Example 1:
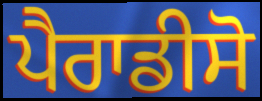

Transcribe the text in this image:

ਪੈਰਾਡੀਸੋ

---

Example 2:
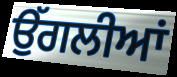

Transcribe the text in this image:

ਉੱਗਲੀਆਂ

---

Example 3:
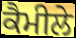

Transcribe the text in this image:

ਕੈਮੀਲੇ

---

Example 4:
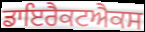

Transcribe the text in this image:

ਡਾਇਰੈਕਟਐਕਸ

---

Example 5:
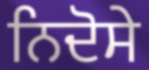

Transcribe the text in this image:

ਨਿਦੋਸੇ